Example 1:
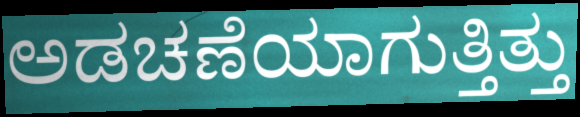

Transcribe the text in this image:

ಅಡಚಣೆಯಾಗುತ್ತಿತ್ತು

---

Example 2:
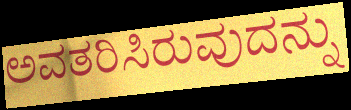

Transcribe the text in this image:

ಅವತರಿಸಿರುವುದನ್ನು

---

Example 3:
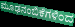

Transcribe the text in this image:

ಮೂಢನಂಬಿಕೆಗಳಿಂದ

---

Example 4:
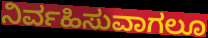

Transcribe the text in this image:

ನಿರ್ವಹಿಸುವಾಗಲೂ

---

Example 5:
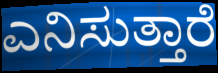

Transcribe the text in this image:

ಎನಿಸುತ್ತಾರೆ